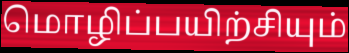
மொழிப்பயிற்சியும்